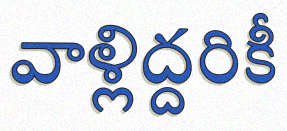
వాళ్లిద్దరికీ